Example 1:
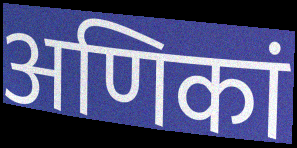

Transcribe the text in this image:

अणिकां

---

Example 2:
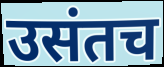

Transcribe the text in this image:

उसंतच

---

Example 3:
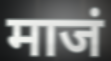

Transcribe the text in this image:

माजं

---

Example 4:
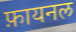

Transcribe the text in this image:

फ़ायनल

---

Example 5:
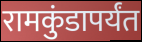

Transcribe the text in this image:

रामकुंडापर्यंत